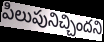
పిలుపునిచ్చిందని